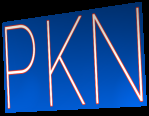
PKN